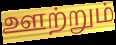
ஊற்றும்